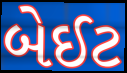
બેઈટ